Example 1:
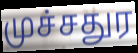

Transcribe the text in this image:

முச்சதுர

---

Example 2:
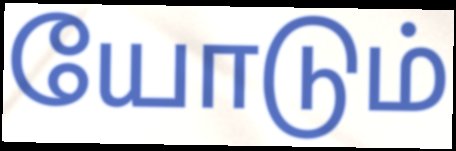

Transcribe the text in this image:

யோடும்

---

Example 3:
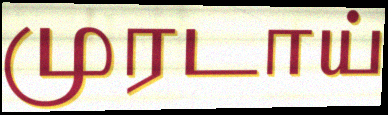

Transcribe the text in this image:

முரடாய்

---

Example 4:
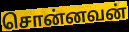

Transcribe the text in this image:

சொன்னவன்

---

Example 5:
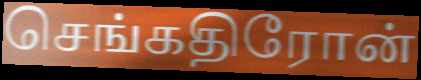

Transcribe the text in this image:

செங்கதிரோன்